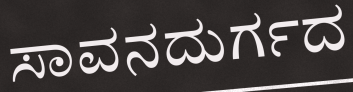
ಸಾವನದುರ್ಗದ